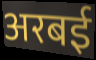
अरबई